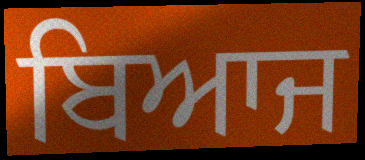
ਬਿਆਜ